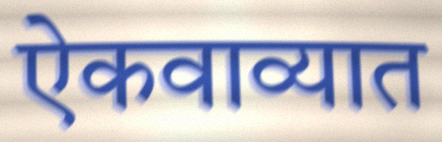
ऐकवाव्यात